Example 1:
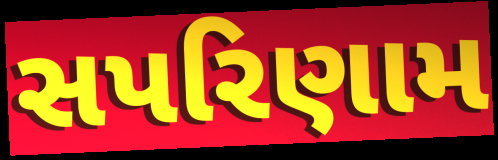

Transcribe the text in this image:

સપરિણામ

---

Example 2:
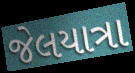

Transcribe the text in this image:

જેલયાત્રા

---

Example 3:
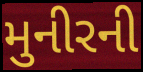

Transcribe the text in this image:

મુનીરની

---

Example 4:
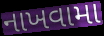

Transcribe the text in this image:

નાખવામા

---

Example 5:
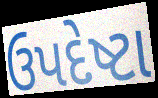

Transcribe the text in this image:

ઉપદેષ્ટા